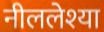
नीललेश्या